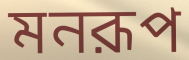
মনরূপ